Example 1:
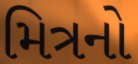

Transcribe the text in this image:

મિત્રનો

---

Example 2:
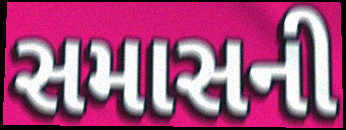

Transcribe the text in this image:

સમાસની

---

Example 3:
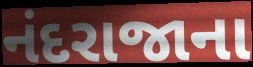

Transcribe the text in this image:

નંદરાજાના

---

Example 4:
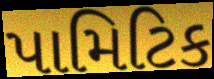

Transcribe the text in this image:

પામિટિક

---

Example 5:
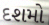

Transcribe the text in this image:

દશમો